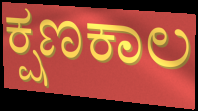
ಕ್ಷಣಕಾಲ